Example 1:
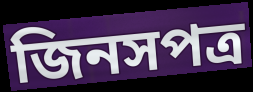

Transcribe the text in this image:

জিনসপত্র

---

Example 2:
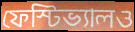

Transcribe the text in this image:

ফেস্টিভ্যালও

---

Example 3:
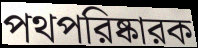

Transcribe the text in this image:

পথপরিষ্কারক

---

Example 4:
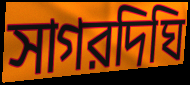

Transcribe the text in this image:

সাগরদিঘি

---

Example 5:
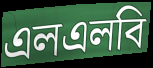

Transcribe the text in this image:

এলএলবি